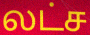
லட்ச